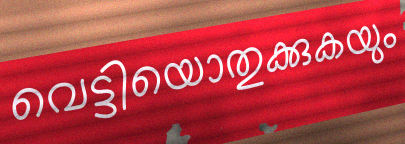
വെട്ടിയൊതുക്കുകയും